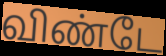
விண்டே